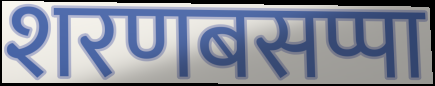
शरणबसप्पा